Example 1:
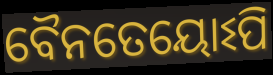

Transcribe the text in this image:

ବୈନତେୟୋଽପି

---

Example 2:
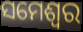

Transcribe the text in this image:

ସମେଶ୍ୱର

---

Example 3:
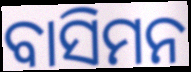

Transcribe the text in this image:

ବାସିମନ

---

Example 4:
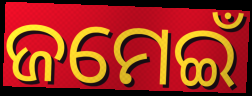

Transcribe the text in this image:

ଜମେଇଁ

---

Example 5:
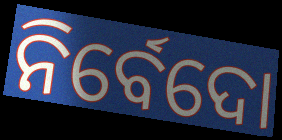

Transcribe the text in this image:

ନିର୍ବେଦୋ